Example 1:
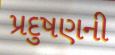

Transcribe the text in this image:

પ્રદુષણની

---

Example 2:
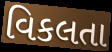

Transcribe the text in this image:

વિકલતા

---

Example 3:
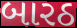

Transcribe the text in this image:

બારઠ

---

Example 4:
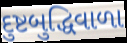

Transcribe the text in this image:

દુષ્ટબુદ્ધિવાળા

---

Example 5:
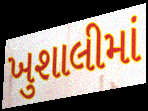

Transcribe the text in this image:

ખુશાલીમાં